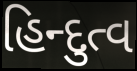
હિન્દુત્વ